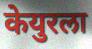
केयुरला